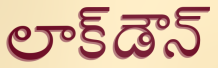
లాక్‌డౌన్